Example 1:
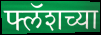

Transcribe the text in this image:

फ्लॅशच्या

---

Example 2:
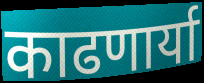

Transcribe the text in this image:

काढणार्या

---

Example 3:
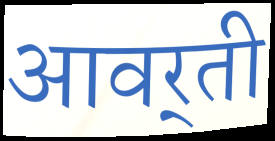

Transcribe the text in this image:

आवर्ती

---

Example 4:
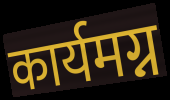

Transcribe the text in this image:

कार्यमग्न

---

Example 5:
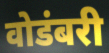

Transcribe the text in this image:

वोडंबरी